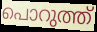
പൊറുത്ത്